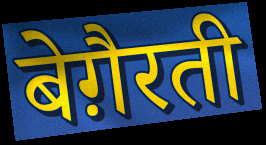
बेग़ैरती